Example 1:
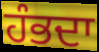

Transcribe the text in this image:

ਹੰਭਦਾ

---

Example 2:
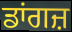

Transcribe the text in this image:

ਡਾਂਗਜ਼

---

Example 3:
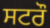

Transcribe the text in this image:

ਸਟਰੌ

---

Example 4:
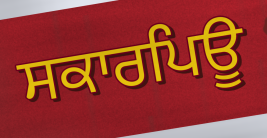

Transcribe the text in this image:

ਸਕਾਰਪਿਊ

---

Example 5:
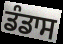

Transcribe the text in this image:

ਡੰਡਾਸ